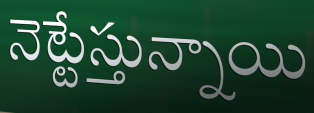
నెట్టేస్తున్నాయి